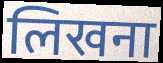
लिखना